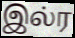
இல்ர